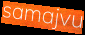
samajvu